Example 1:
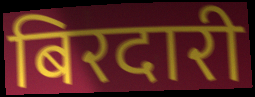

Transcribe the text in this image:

बिरदारी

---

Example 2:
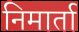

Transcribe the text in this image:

निमार्ता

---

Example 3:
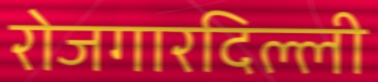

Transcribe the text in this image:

रोजगारदिल्ली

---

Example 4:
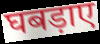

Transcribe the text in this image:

घबड़ाए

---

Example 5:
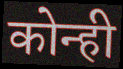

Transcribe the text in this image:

कोन्ही